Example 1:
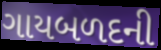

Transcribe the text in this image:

ગાયબળદની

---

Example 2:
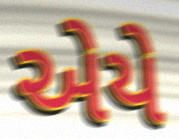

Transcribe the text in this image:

એયે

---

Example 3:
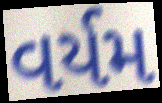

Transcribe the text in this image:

વર્યમ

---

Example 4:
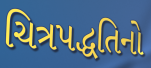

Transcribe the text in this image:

ચિત્રપદ્ધતિનો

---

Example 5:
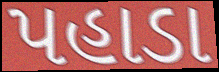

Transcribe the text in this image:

પહાડા